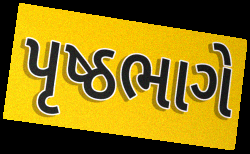
પૃષ્ઠભાગે